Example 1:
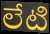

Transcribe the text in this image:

లేటి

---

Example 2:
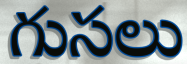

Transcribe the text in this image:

గుసలు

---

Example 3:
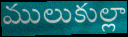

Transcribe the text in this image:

ములుకుల్లా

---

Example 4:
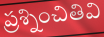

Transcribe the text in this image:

ప్రశ్నించితివి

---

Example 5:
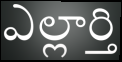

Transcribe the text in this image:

ఎల్లార్తి